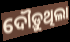
ଦୌଡ଼ୁଥିଲା